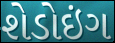
શેડોઇંગ